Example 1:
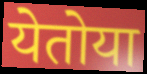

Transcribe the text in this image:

येतोया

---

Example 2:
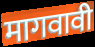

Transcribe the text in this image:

मागवावी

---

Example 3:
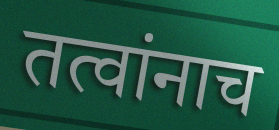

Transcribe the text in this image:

तत्वांनाच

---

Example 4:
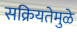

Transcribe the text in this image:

सक्रियतेमुळे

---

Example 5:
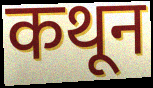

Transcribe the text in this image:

कथून